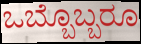
ಒಬ್ಬೊಬ್ಬರೂ